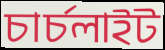
চাৰ্চলাইট